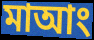
মাআং